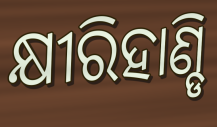
କ୍ଷୀରିହାଣ୍ଡି